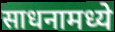
साधनामध्ये